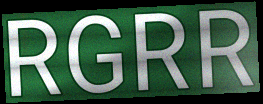
RGRR